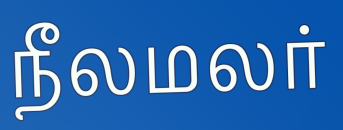
நீலமலர்